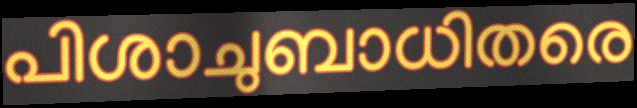
പിശാചുബാധിതരെ